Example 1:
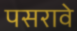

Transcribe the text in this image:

पसरावे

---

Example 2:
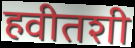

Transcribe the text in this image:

हवीतशी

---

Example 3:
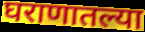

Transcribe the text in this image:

घराणातल्या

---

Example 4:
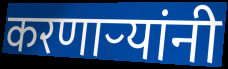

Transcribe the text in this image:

करणाऱ्यांनी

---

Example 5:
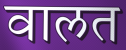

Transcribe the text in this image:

वालत